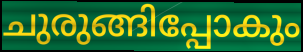
ചുരുങ്ങിപ്പോകും